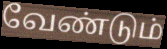
வேண்டும்